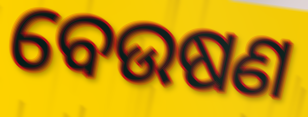
ବେଉଷଣ